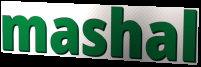
mashal